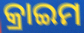
କ୍ରାଇମ